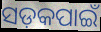
ସଡ଼କପାଇଁ